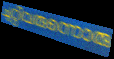
ചുറ്റിവരുന്നൊരു